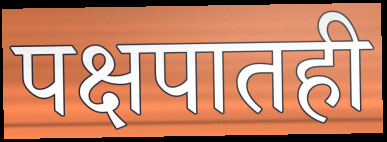
पक्षपातही